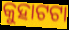
କୁହାଟଟା